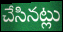
చేసినట్లు